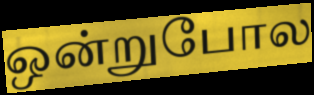
ஒன்றுபோல